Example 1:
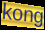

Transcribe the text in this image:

kong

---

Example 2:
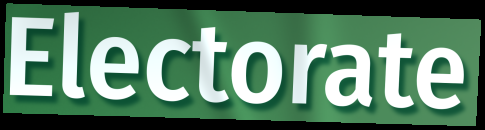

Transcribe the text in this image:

Electorate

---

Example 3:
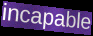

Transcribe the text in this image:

incapable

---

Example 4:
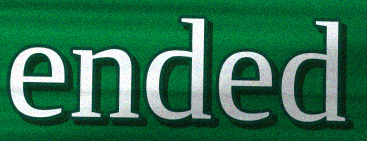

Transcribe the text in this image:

ended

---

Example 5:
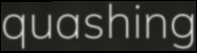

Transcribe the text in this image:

quashing